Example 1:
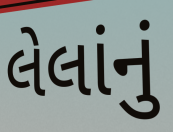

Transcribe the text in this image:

લેલાંનું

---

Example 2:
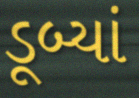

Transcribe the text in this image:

ડૂબ્યાં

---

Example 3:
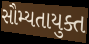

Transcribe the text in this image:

સૌમ્યતાયુક્ત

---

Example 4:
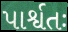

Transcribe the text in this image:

પાર્શ્વતઃ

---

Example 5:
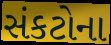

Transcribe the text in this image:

સંકટોના